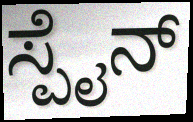
ಸ್ಪೈನ್